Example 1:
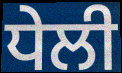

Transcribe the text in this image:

ਧੇਲੀ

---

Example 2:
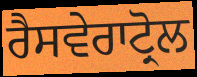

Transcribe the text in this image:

ਰੈਸਵੇਰਾਟ੍ਰੋਲ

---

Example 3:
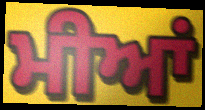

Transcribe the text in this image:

ਮੀਆਂ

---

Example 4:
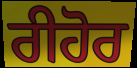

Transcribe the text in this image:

ਰੀਹੋਰ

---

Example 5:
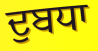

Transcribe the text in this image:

ਦੁਬਧਾ